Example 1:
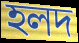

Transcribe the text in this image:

হলদ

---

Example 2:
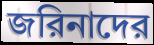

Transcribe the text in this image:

জরিনাদের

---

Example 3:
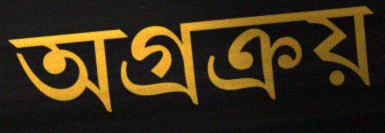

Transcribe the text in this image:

অগ্রক্রয়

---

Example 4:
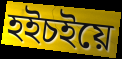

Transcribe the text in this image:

হইচইয়ে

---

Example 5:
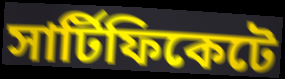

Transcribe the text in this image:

সার্টিফিকেটে